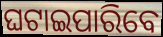
ଘଟାଇପାରିବେ